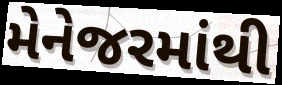
મેનેજરમાંથી